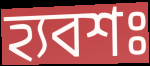
হ্যবশঃ